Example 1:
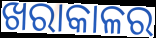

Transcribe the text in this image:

ଖରାକାଳର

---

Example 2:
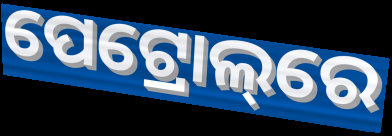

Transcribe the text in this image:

ପେଟ୍ରୋଲ୍‌ରେ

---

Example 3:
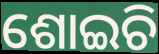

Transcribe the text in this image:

ଶୋଇଚି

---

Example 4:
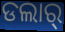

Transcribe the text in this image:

ଡଲାର୍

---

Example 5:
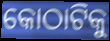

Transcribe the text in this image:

କୋଠାଟିକୁ